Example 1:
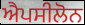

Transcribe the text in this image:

ਐਪਸੀਲੋਨ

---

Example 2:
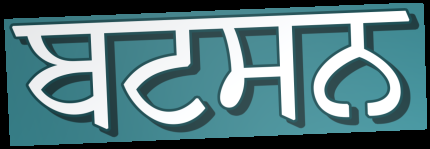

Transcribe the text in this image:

ਬਟਸਨ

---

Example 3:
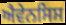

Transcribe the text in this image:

ਐਵੇਨਸਿਸ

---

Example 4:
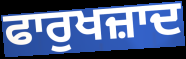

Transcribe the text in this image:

ਫਾਰੁਖਜ਼ਾਦ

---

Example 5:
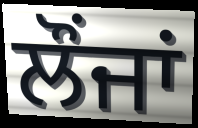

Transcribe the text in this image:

ਲੌਂਜਾਂ